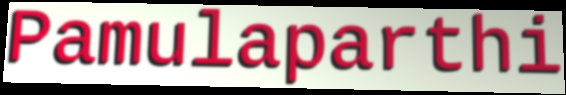
Pamulaparthi